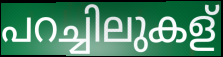
പറച്ചിലുകള്